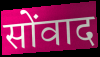
सोंवाद